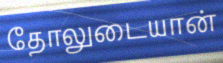
தோலுடையான்